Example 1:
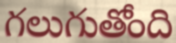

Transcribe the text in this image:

గలుగుతోంది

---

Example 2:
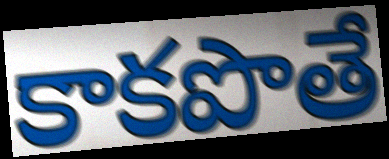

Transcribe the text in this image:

కాకపొతే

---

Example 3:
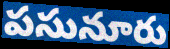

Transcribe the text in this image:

పసునూరు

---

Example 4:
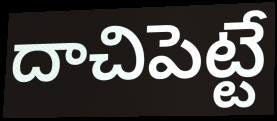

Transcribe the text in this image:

దాచిపెట్టే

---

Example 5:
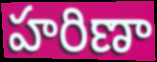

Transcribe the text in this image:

హరిణా